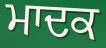
ਮਾਦਕ